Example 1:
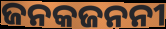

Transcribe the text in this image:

ଜନକଜନନୀ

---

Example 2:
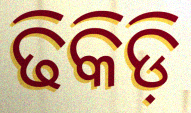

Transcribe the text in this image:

ଢିକିଡ଼ି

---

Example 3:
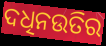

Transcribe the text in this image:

ଦଧିନଉତିର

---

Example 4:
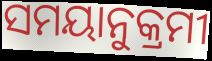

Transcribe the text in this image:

ସମୟାନୁକ୍ରମୀ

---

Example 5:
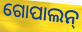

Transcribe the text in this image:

ଗୋପାଲନ୍